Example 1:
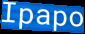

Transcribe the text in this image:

Ipapo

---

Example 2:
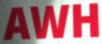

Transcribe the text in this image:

AWH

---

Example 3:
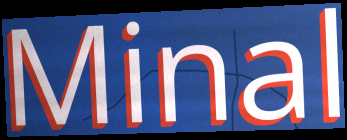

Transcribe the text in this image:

Minal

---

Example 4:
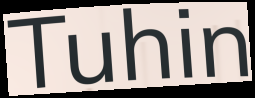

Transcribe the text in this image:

Tuhin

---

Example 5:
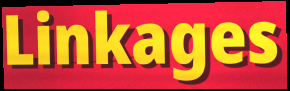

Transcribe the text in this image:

Linkages